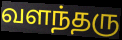
வளந்தரு